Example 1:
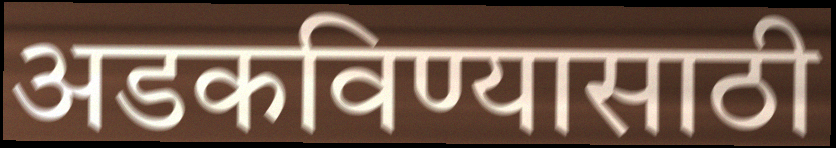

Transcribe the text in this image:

अडकविण्यासाठी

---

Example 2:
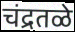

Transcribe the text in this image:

चंद्रतळे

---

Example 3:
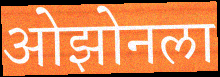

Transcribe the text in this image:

ओझोनला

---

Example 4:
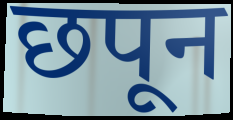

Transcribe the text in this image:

छपून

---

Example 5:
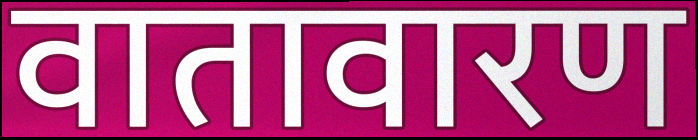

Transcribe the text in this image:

वातावारण